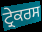
ਟ੍ਰੇਕਰਸ